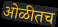
ओळीतच